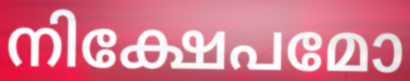
നിക്ഷേപമോ